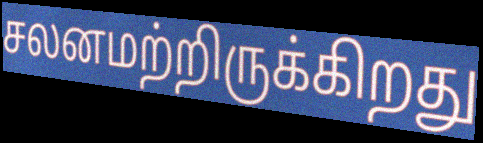
சலனமற்றிருக்கிறது